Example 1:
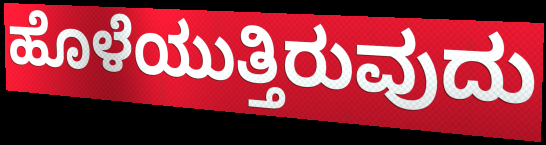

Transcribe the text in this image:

ಹೊಳೆಯುತ್ತಿರುವುದು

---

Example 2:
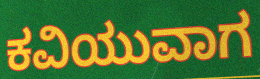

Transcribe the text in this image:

ಕವಿಯುವಾಗ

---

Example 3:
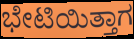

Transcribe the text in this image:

ಭೇಟಿಯಿತ್ತಾಗ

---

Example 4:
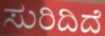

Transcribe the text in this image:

ಸುರಿದಿದೆ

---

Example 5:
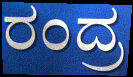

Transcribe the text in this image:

ರಂದ್ರ